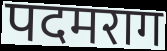
पदमराग